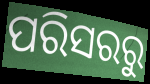
ପରିସରରୁ